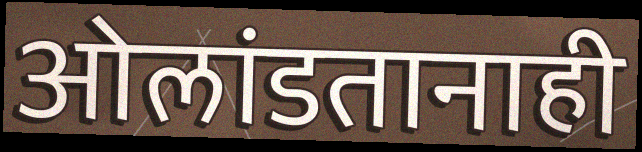
ओलांडतानाही